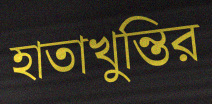
হাতাখুন্তির